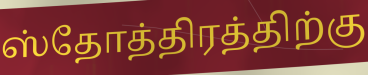
ஸ்தோத்திரத்திற்கு